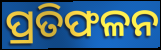
ପ୍ରତିଫଳନ